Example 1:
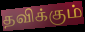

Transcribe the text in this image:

தவிக்கும்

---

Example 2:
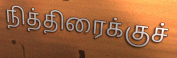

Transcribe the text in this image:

நித்திரைக்குச்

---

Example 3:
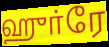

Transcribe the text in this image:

ஹுர்ரே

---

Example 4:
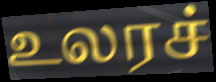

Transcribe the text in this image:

உலரச்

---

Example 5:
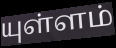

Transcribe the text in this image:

யுள்ளம்